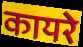
कायरे